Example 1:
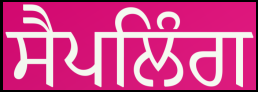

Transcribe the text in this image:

ਸੈਪਲਿੰਗ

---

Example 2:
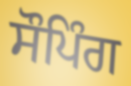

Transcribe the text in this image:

ਸੌਪਿੰਗ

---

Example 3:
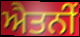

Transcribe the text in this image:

ਐਤਨੀਂ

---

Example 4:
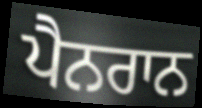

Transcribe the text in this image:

ਪੈਨਰਾਨ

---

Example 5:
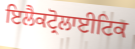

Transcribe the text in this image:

ਇਲੈਕਟ੍ਰੋਲਾਈਟਿਕ